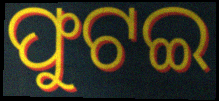
ଫୁଟଇ